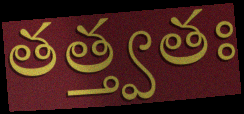
తత్త్వతః